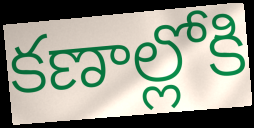
కణాల్లోకి